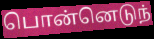
பொன்னெடுந்